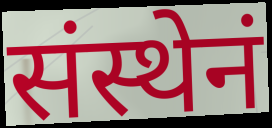
संस्थेनं